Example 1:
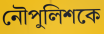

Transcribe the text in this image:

নৌপুলিশকে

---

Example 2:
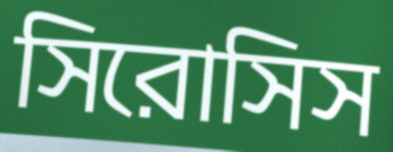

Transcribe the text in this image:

সিরোসিস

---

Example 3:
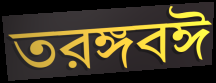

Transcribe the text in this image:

তরঙ্গবঈ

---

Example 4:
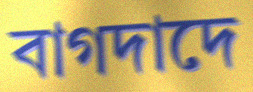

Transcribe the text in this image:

বাগদাদে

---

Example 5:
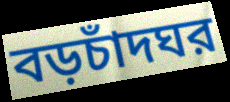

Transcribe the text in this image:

বড়চাঁদঘর